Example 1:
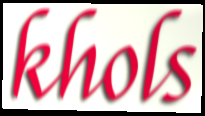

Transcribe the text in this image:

khols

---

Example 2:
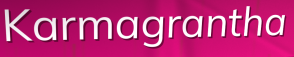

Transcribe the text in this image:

Karmagrantha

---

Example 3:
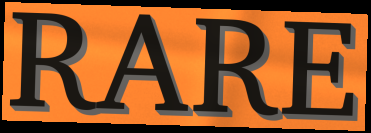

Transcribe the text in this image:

RARE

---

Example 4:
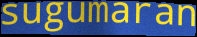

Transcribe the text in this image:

sugumaran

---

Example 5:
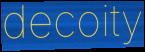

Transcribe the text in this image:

decoity